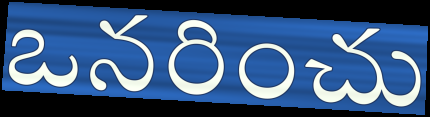
ఒనరించు